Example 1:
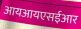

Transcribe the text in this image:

आयआयएसईआर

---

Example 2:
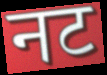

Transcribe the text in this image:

नट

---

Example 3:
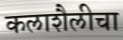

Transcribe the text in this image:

कलाशैलीचा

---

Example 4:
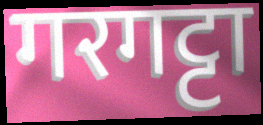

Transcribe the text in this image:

गरगट्टा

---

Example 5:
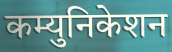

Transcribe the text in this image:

कम्युनिकेशन